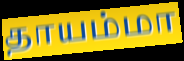
தாயம்மா